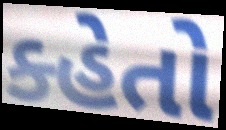
ક્હેતો